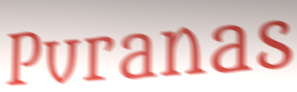
Puranas